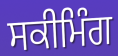
ਸਕੀਮਿੰਗ